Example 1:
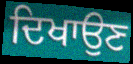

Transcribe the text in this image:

ਦਿਖਾਉਣ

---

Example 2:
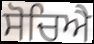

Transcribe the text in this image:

ਸੋਚਿਐ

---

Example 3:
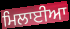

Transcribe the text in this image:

ਮਿਲਾਈਆ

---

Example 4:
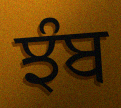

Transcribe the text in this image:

ਝੰਬ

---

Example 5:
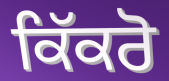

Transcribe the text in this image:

ਕਿੱਕਰੋ